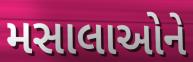
મસાલાઓને